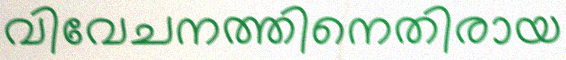
വിവേചനത്തിനെതിരായ